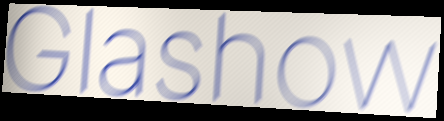
Glashow